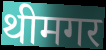
थीमगर